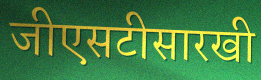
जीएसटीसारखी